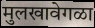
मुलखावेगळा